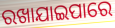
ରଖାଯାଇପାରେ